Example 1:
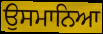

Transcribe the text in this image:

ਉਸਮਾਨਿਆ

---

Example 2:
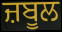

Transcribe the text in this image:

ਜ਼ਬੂਲ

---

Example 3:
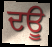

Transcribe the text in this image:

ਦਊ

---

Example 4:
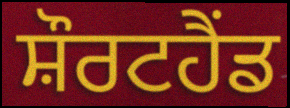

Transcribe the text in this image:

ਸ਼ੌਰਟਹੈਂਡ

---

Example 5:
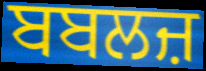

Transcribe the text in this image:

ਬਬਲਜ਼